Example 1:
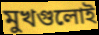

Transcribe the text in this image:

মুখগুলোই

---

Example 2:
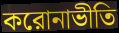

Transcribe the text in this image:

করোনাভীতি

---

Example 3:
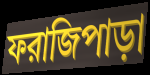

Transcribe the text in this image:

ফরাজিপাড়া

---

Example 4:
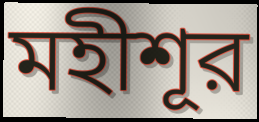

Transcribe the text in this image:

মহীশূর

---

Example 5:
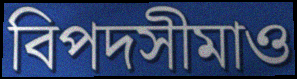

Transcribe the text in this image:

বিপদসীমাও